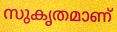
സുകൃതമാണ്